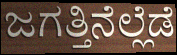
ಜಗತ್ತಿನೆಲ್ಲೆಡೆ